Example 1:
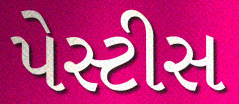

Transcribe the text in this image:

પેસ્ટીસ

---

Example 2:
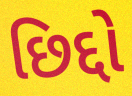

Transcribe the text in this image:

છિદ્દો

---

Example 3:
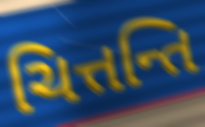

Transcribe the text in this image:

ચિત્તન્તિ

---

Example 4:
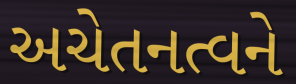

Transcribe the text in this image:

અચેતનત્વને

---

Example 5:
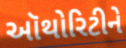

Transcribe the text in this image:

ઑથોરિટીને